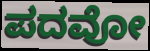
ಪದವೋ